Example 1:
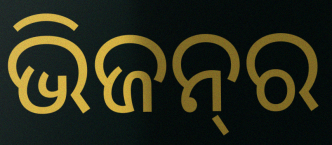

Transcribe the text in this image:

ଭିଜନ୍‌ର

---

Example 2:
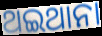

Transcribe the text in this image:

ଥଇଥାନା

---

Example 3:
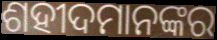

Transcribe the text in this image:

ଶହୀଦମାନଙ୍କର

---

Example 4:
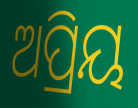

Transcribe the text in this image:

ଅପ୍ରିୟ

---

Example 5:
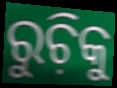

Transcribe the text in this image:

ରୁଚ଼ିକୁ